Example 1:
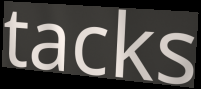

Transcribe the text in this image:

tacks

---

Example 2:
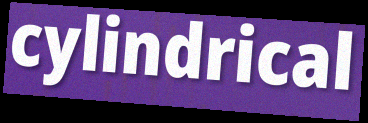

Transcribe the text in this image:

cylindrical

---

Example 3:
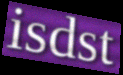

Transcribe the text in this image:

isdst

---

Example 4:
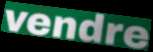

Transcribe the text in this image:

vendre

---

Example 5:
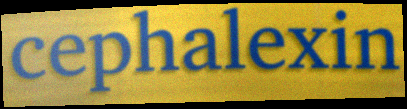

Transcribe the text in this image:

cephalexin